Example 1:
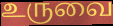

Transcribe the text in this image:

உருவை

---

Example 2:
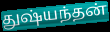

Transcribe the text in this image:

துஷ்யந்தன்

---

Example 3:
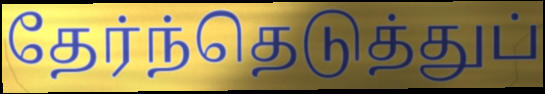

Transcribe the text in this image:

தேர்ந்தெடுத்துப்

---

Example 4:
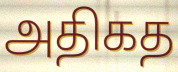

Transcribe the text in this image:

அதிகத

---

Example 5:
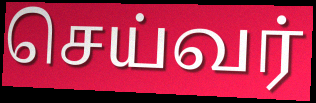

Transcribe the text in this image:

செய்வர்